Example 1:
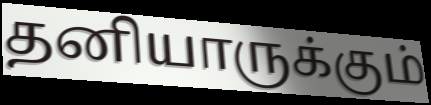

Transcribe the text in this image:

தனியாருக்கும்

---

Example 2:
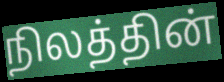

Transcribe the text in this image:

நிலத்தின்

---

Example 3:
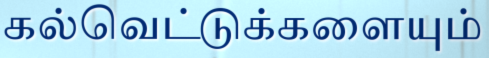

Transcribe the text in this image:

கல்வெட்டுக்களையும்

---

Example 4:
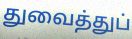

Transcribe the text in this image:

துவைத்துப்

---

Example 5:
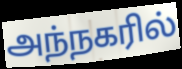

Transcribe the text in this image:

அந்நகரில்